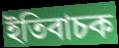
ইতিবাচক